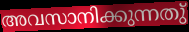
അവസാനിക്കുന്നതു്